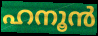
ഹനൂൻ